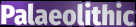
Palaeolithic